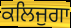
ਕਲਿਜੁਗਾ